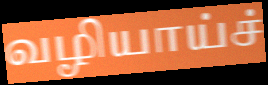
வழியாய்ச்